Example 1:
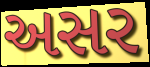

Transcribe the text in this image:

અસર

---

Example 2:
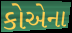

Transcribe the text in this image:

કોએના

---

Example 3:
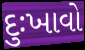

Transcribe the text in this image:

દુઃખાવો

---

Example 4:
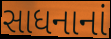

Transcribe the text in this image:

સાધનાનાં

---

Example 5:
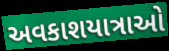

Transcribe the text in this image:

અવકાશયાત્રાઓ